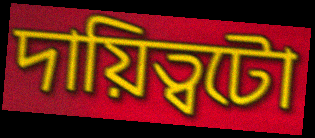
দায়িত্বটো